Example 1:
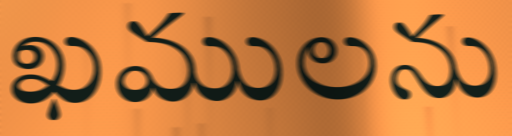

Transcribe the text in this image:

ఖములను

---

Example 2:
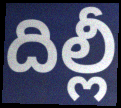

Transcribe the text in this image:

దిల్లీ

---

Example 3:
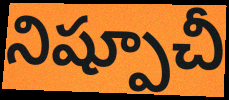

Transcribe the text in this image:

నిష్పూచీ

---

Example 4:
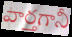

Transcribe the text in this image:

వార్తగానీ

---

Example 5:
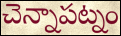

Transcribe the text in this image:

చెన్నాపట్నం